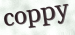
coppy